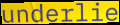
underlie